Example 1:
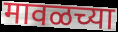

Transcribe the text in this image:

मावळच्या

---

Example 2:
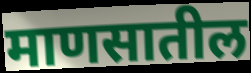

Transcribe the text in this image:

माणसातील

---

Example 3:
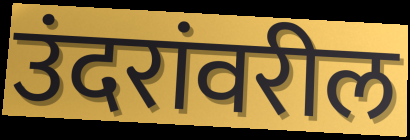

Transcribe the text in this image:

उंदरांवरील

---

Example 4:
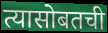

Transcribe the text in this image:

त्यासोबतची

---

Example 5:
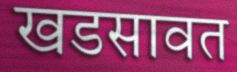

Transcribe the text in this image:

खडसावत